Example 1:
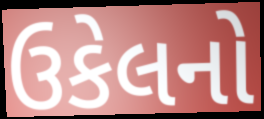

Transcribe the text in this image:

ઉકેલનો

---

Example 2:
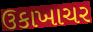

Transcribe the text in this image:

ઉકાખાચર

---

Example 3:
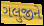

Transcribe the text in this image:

ગલુજીને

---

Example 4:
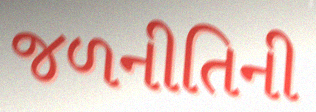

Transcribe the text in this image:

જળનીતિની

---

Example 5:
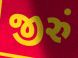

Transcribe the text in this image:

જીરું